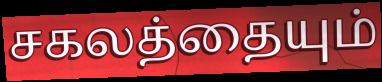
சகலத்தையும்